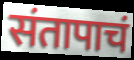
संतापाचं